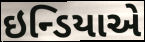
ઇન્ડિયાએ